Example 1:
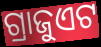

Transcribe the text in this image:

ଗ୍ରାଜୁଏଟ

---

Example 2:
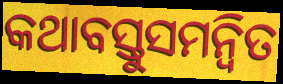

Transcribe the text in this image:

କଥାବସ୍ତୁସମନ୍ୱିତ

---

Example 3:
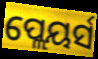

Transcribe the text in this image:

ପ୍ଲେୟର୍ସ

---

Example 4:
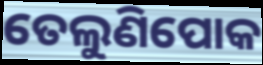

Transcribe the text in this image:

ତେଲୁଣିପୋକ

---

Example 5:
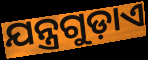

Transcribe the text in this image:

ଯନ୍ତ୍ରଗୁଡ଼ାଏ